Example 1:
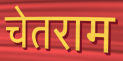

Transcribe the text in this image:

चेतराम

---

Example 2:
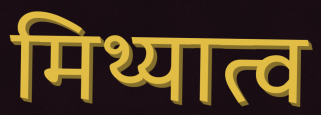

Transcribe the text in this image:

मिथ्‍यात्‍व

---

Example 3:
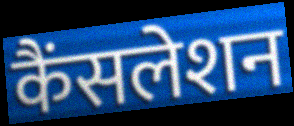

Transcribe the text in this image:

कैंसलेशन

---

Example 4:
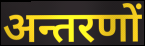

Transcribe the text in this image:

अन्तरणों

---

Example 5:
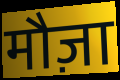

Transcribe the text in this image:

मौज़ा